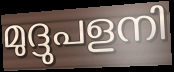
മുദ്ദുപളനി